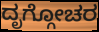
ದೃಗ್ಗೋಚರ